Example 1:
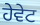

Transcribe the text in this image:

ਹੇਵੇਟ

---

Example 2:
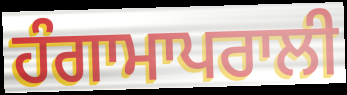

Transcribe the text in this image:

ਹੰਗਾਮਾਪਰਾਲੀ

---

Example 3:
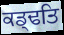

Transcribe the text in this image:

ਕਡ੍ਢਤਿ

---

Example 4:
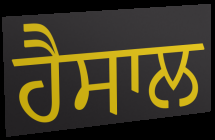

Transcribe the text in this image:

ਹੈਸਾਲ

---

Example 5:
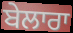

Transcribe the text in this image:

ਬੇਲਾਰਾ